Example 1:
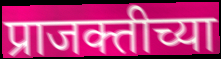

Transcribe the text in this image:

प्राजक्तीच्या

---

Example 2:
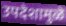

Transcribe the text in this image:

उपदेशामुळे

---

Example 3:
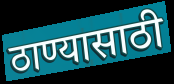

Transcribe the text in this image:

ठाण्यासाठी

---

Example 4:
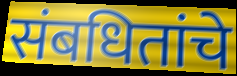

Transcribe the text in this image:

संबधितांचे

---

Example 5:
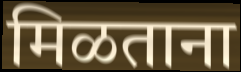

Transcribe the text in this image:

मिळताना